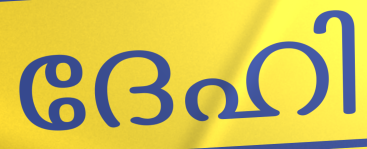
ദേഹി